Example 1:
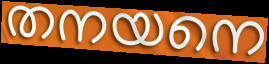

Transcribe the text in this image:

തനയനെ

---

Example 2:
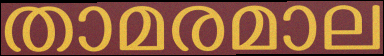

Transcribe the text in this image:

താമരമാല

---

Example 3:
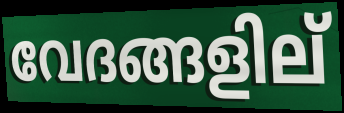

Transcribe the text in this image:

വേദങ്ങളില്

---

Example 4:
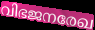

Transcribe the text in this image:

വിഭജനരേഖ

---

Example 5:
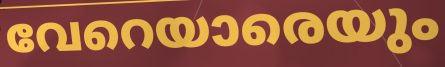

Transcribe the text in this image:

വേറെയാരെയും